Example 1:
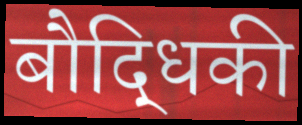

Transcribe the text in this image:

बौद्धिकी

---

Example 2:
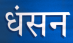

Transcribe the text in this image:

धंसन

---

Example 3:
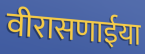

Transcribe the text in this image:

वीरासणाईया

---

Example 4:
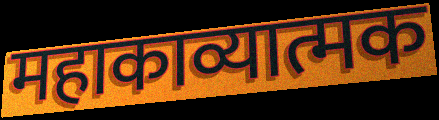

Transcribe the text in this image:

महाकाव्यात्मक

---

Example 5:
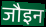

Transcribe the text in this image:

जौइन